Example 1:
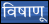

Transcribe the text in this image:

विषाणू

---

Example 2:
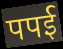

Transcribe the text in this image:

पपई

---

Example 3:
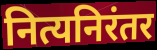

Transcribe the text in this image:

नित्यनिरंतर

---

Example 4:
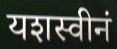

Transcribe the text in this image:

यशस्वीनं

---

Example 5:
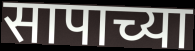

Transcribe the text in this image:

सापाच्या